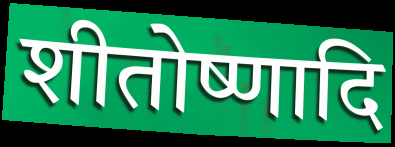
शीतोष्णादि